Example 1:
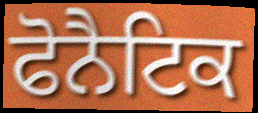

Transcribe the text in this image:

ਫੋਨੈਟਿਕ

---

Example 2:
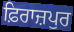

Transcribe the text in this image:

ਫ਼ਿਰਾਜ਼ਪੁਰ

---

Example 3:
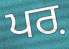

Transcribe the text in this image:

ਪਰ਼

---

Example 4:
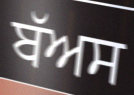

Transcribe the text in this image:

ਬੱਅਸ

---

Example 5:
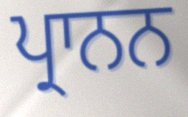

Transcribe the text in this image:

ਪ੍ਰਾਨਨ